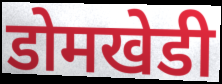
डोमखेडी